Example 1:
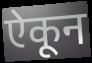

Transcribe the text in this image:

ऐकून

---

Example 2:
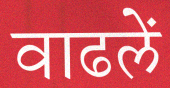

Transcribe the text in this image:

वाढलें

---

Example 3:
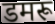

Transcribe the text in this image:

डमरू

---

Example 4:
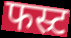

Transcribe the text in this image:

फस्र्ट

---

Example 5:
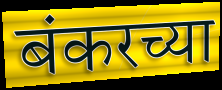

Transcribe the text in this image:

बंकरच्या